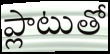
ప్లాటుతో